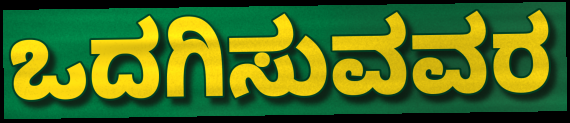
ಒದಗಿಸುವವರ